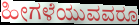
ಹೀಗಳೆಯುವವರೂ